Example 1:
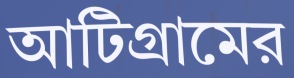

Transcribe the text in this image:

আটিগ্রামের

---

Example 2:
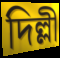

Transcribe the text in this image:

দিল্লী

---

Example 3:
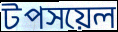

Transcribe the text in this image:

টপসয়েল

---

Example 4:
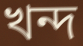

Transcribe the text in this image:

খন্দ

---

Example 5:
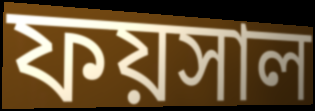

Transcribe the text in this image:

ফয়সাল